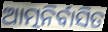
ଆତ୍ମନିର୍ବାସିତ